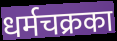
धर्मचक्रका